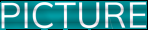
PICTURE